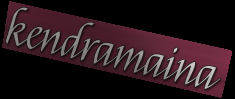
kendramaina